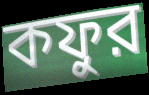
কফুর